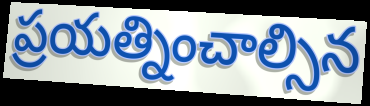
ప్రయత్నించాల్సిన